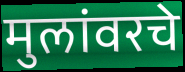
मुलांवरचे